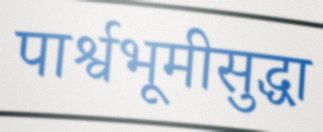
पार्श्वभूमीसुद्धा